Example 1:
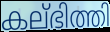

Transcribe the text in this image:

കല്ഭിത്തി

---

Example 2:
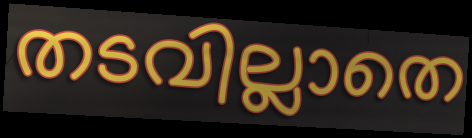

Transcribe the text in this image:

തടവില്ലാതെ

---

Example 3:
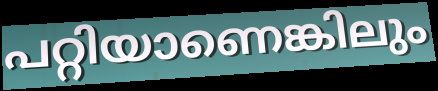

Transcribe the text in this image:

പറ്റിയാണെങ്കിലും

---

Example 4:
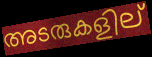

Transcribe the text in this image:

അടരുകളില്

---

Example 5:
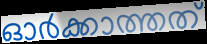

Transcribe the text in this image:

ഓർക്കാത്തത്